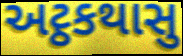
અટ્ઠકથાસુ